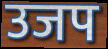
उजप